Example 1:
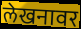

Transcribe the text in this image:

लेखनावर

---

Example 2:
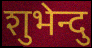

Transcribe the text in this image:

शुभेन्दु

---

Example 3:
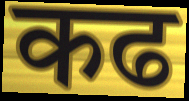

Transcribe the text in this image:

कढ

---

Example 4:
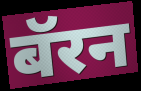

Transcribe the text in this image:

बॅरन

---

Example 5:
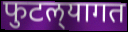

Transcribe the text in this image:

फुटल्यागत